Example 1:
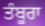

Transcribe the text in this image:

ਤੰਬੂਰਾ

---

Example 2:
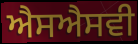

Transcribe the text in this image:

ਐਸਐਸਵੀ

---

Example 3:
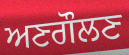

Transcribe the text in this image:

ਅਣਗੌਲਣ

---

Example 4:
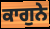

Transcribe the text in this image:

ਕਾਗੁਨੇ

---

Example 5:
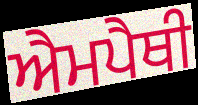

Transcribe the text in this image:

ਐਮਪੈਥੀ